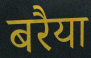
बरैया